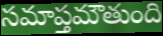
సమాప్తమౌతుంది